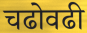
चढोवढी